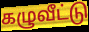
கழுவீட்டு